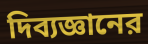
দিব্যজ্ঞানের